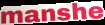
manshe